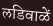
लडिवाळें